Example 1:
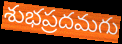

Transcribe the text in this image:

శుభప్రదమగు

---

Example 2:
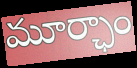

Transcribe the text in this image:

మూర్ఛాం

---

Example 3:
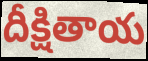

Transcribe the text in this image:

దీక్షితాయ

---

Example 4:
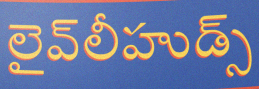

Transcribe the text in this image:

లైవ్‌లీహుడ్స్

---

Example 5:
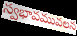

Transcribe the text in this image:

స్వభావమువలన